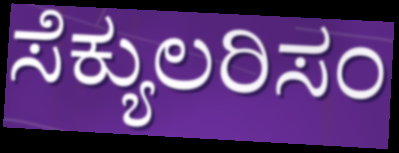
ಸೆಕ್ಯುಲರಿಸಂ